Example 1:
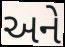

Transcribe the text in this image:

અને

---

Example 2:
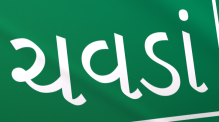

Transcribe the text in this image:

ચવડાં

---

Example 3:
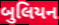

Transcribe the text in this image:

બુલિયન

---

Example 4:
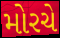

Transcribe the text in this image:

મોરચે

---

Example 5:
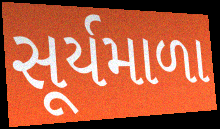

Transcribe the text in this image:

સૂર્યમાળા